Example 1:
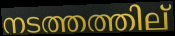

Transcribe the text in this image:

നടത്തത്തില്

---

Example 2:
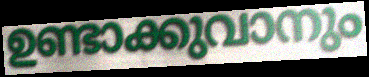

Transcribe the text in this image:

ഉണ്ടാക്കുവാനും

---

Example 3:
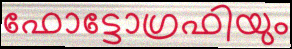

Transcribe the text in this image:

ഫോട്ടോഗ്രഫിയും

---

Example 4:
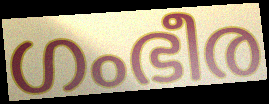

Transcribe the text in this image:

ഗംഭീര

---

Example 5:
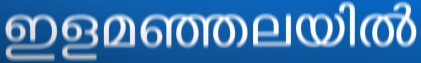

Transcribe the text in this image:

ഇളമഞ്ഞലയിൽ